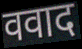
ववाद